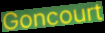
Goncourt